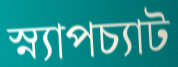
স্ন্যাপচ্যাট